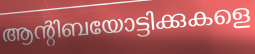
ആന്റിബയോട്ടിക്കുകളെ